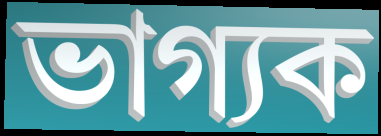
ভাগ্যক